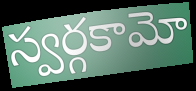
స్వర్గకామో